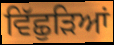
ਵਿੱਛੁੜਿਆਂ